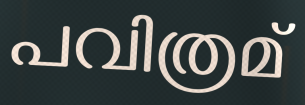
പവിത്രമ്